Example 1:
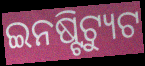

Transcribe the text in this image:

ଇନଷ୍ଟିଟ୍ୟୁଟ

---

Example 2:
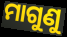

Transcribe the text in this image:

ମାଗୁଣୁ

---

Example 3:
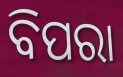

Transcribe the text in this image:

ବିପରା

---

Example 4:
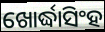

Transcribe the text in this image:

ଖୋର୍ଦ୍ଧାସିଂହ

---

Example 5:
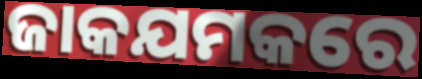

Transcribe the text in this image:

ଜାକଯମକରେ